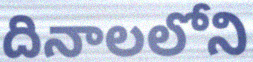
దినాలలోని